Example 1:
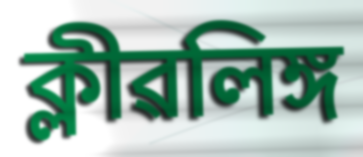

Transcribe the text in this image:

ক্লীৱলিঙ্গ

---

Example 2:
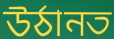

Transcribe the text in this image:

উঠানত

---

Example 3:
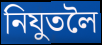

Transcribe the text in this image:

নিযুতলৈ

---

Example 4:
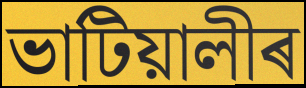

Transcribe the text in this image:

ভাটিয়ালীৰ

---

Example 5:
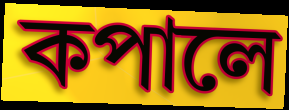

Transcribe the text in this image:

কপালে